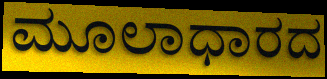
ಮೂಲಾಧಾರದ